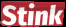
Stink